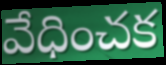
వేధించక